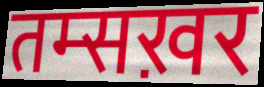
तम्सख़र